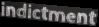
indictment